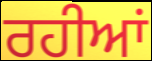
ਰਹੀਆਂ